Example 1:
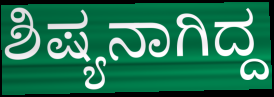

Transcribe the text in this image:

ಶಿಷ್ಯನಾಗಿದ್ದ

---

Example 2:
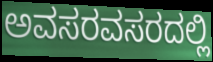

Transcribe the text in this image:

ಅವಸರವಸರದಲ್ಲಿ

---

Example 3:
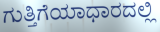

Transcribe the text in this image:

ಗುತ್ತಿಗೆಯಾಧಾರದಲ್ಲಿ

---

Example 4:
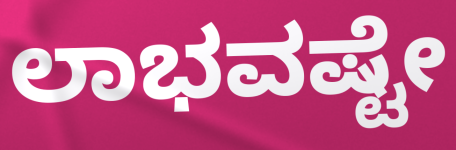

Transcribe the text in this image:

ಲಾಭವಷ್ಟೇ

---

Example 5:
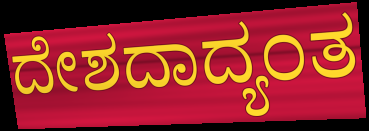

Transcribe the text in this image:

ದೇಶದಾದ್ಯಂತ